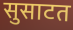
सुसाटत